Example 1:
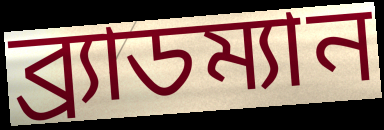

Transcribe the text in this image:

ব্র্যাডম্যান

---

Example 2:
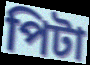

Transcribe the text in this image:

পিটা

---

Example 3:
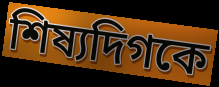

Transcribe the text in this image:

শিষ্যদিগকে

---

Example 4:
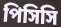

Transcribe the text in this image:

পিসিসি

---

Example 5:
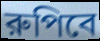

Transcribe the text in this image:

রুপিবে